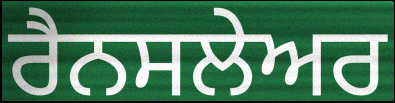
ਰੈਨਸਲੇਅਰ